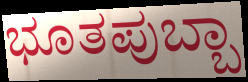
ಭೂತಪುಬ್ಬಾ